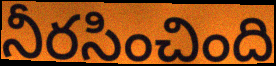
నీరసించింది